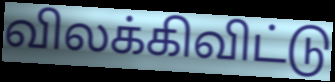
விலக்கிவிட்டு